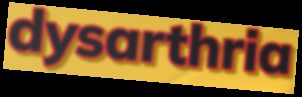
dysarthria